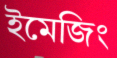
ইমেজিং